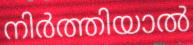
നിർത്തിയാൽ